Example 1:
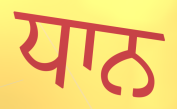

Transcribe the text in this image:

ਧਾਨ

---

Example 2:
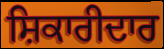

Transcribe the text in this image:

ਸ਼ਿਕਾਰੀਦਾਰ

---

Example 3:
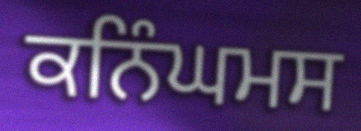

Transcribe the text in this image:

ਕਨਿੰਘਮਸ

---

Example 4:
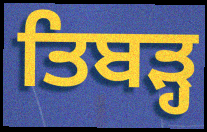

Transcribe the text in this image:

ਤਿਬੜ੍ਹ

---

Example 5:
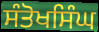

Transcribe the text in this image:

ਸੰਤੋਖਸਿੰਘ